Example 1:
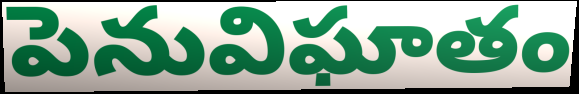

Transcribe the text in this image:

పెనువిఘాతం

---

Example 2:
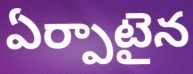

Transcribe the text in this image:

ఏర్పాటైన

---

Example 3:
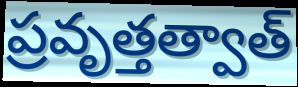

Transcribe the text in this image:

ప్రవృత్తత్వాత్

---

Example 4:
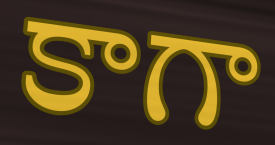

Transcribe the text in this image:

కాగా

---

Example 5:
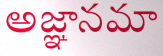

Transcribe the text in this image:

అజ్ఞానమా